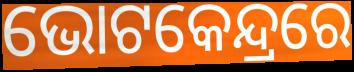
ଭୋଟକେନ୍ଦ୍ରରେ